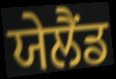
ਯੇਲੈਂਡ